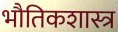
भौतिकशास्त्र